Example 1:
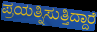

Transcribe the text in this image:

ಪ್ರಯತ್ನಿಸುತ್ತಿದ್ದಾರೆ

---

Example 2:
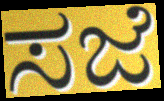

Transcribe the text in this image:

ಸಜೆ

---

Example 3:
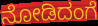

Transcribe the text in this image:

ನೋಡಿದಂಗೆ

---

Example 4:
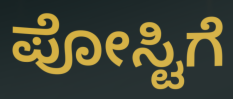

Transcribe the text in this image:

ಪೋಸ್ಟಿಗೆ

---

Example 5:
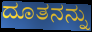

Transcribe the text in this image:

ದೂತನನ್ನು